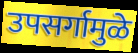
उपसर्गामुळे